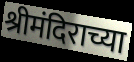
श्रीमंदिराच्या